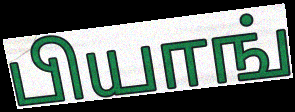
பியாங்